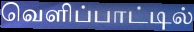
வெளிப்பாட்டில்